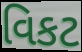
વિકટ